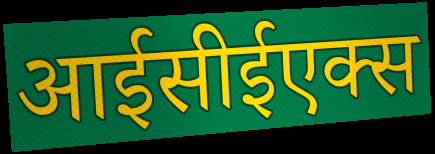
आईसीईएक्स